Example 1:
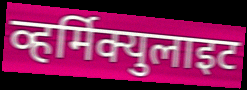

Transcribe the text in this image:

व्हर्मिक्युलाइट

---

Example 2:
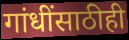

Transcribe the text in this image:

गांधींसाठीही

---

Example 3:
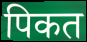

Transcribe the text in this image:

पिकत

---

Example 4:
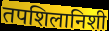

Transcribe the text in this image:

तपशिलानिशी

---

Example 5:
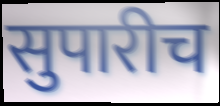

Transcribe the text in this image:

सुपारीच